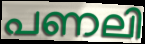
പണലി